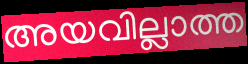
അയവില്ലാത്ത